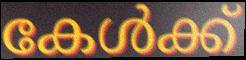
കേൾക്ക്